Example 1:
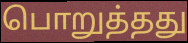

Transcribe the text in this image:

பொறுத்தது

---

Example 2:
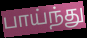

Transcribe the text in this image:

பாய்ந்து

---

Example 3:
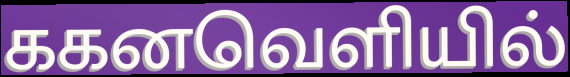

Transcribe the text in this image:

ககனவெளியில்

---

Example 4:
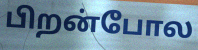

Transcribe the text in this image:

பிறன்போல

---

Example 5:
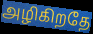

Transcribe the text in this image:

அழிகிறதே